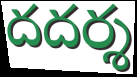
దదర్శ